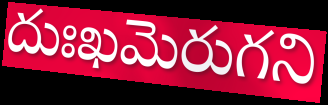
దుఃఖమెరుగని